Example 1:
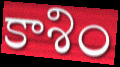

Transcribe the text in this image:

కాశిం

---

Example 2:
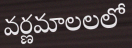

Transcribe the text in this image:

వర్ణమాలలలో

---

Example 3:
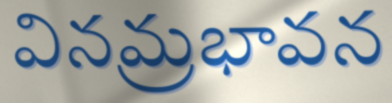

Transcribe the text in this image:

వినమ్రభావన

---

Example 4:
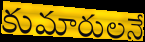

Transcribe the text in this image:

కుమారులనే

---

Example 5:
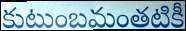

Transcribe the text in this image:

కుటుంబమంతటికీ